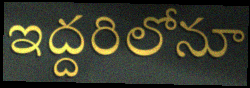
ఇద్దరిలోనూ